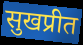
सुखप्रीत